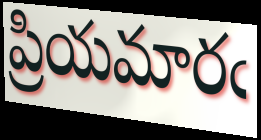
ప్రియమారఁ